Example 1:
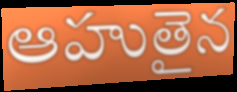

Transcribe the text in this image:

ఆహుతైన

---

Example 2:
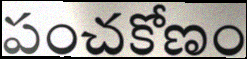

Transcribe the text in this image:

పంచకోణం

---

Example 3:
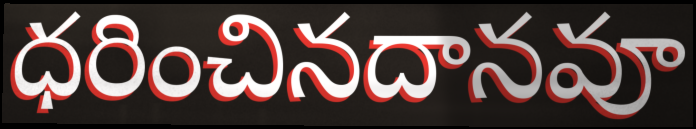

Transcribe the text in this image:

ధరించినదానవూ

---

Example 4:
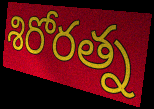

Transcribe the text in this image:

శిరోరత్న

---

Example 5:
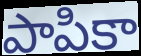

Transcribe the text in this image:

పాపికా